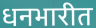
धनभारीत